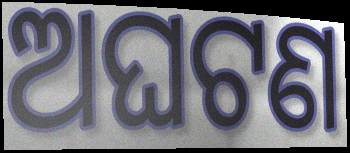
ଅଘଟଣ